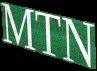
MTN